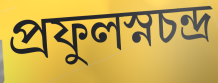
প্রফুলস্নচন্দ্র